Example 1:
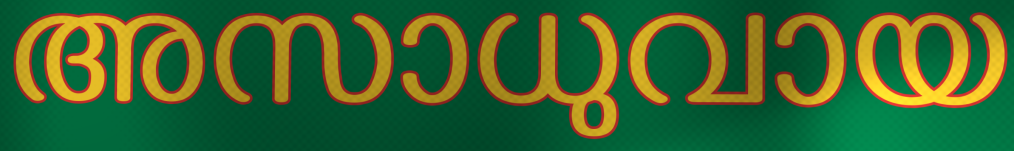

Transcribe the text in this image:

അസാധുവായ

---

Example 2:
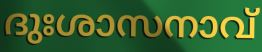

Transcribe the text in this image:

ദുഃശാസനാവ്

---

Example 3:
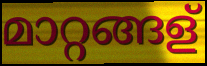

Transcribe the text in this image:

മാറ്റങ്ങള്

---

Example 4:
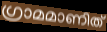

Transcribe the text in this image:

ഗ്രാമമാണിത്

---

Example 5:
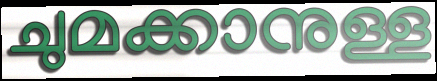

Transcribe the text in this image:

ചുമക്കാനുള്ള